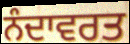
ਨੰਦਾਵਰਤ